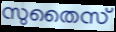
സുതൈസ്